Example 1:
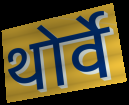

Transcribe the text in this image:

थोर्वे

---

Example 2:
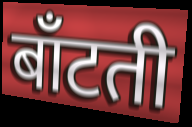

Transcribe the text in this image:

बाँटती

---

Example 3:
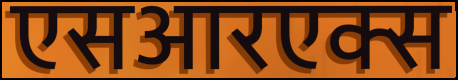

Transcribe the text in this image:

एसआरएक्स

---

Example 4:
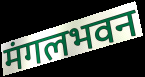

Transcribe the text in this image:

मंगलभवन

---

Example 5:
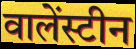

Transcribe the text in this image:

वालेंस्टीन